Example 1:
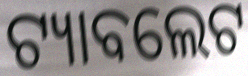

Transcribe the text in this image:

ଟ୍ୟାବଲେଟ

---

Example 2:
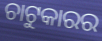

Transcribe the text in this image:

ଚାଟୁକାରର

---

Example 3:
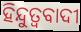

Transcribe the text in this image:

ହିନ୍ଦୁତ୍ୱବାଦୀ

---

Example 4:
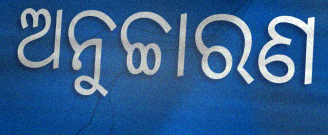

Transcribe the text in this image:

ଅନୁଚ୍ଚାରଣ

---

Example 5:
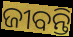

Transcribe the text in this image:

ଜୀବନ୍ତି